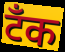
टॅंक